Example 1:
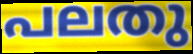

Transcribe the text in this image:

പലതു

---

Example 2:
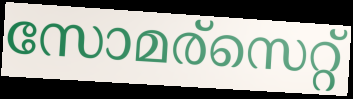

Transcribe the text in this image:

സോമര്സെറ്റ്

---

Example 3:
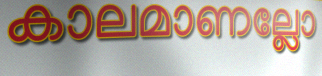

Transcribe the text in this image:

കാലമാണല്ലോ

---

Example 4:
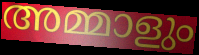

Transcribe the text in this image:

അമ്മാളും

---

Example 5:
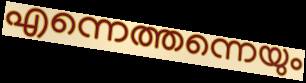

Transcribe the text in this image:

എന്നെത്തന്നെയും